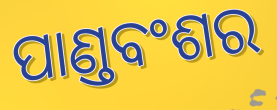
ପାଣ୍ଡବଂଶର